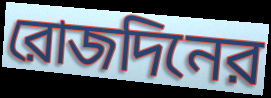
রোজদিনের